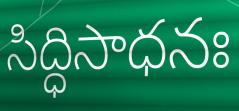
సిద్ధిసాధనః